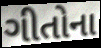
ગીતોના